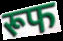
रूफ